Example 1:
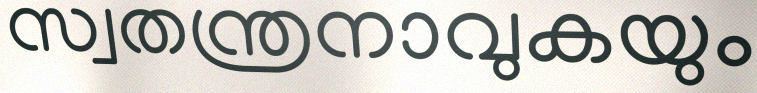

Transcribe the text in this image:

സ്വതന്ത്രനാവുകയും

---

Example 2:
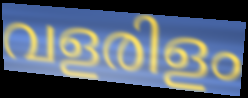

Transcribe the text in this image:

വളരിളം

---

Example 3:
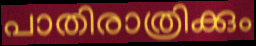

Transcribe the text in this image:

പാതിരാത്രിക്കും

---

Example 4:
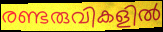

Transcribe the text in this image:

രണ്ടരുവികളിൽ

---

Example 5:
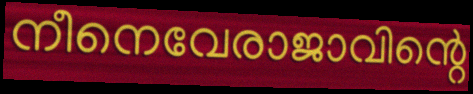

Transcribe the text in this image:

നീനെവേരാജാവിന്റെ